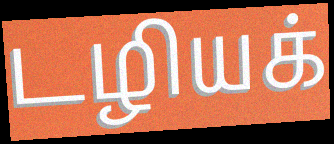
டழியக்